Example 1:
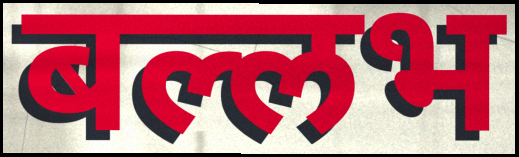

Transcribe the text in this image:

बल्लभ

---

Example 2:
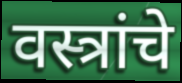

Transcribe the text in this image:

वस्त्रांचे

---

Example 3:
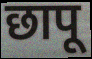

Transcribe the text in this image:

छापू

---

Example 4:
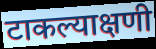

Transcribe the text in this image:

टाकल्याक्षणी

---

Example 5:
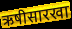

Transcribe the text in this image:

ऋषीसारखा